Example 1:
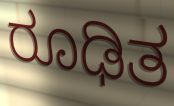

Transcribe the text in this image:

ರೂಢಿತ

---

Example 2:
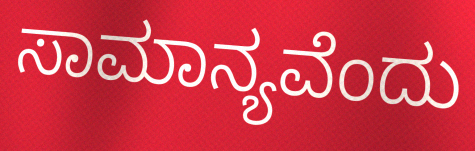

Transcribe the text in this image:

ಸಾಮಾನ್ಯವೆಂದು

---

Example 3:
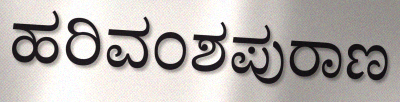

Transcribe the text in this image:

ಹರಿವಂಶಪುರಾಣ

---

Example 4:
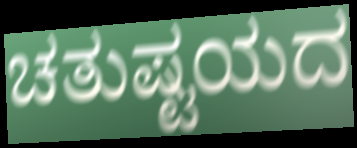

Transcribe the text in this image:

ಚತುಷ್ಟಯದ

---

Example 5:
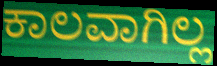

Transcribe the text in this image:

ಕಾಲವಾಗಿಲ್ಲ